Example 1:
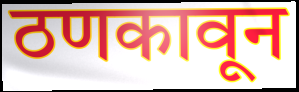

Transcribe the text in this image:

ठणकावून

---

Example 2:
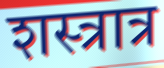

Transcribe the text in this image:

शस्त्रात्र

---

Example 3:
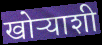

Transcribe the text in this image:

खोऱ्याशी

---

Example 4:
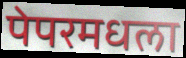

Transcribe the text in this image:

पेपरमधला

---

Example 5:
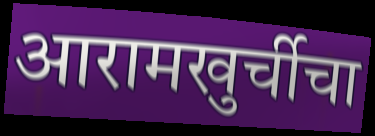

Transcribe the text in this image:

आरामखुर्चीचा